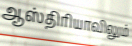
ஆஸ்திரியாவிலும்